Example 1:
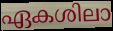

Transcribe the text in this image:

ഏകശിലാ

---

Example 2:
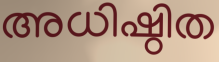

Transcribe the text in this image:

അധിഷ്ഠിത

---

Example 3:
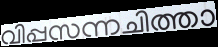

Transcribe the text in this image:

വിപ്പസന്നചിത്താ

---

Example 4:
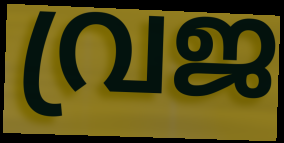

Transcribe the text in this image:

വ്രജ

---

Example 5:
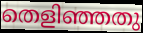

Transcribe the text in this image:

തെളിഞ്ഞതു